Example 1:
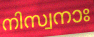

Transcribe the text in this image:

നിസ്വനാഃ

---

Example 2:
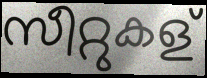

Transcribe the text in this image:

സീറ്റുകള്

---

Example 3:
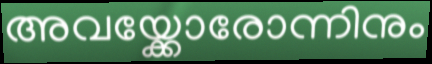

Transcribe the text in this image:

അവയ്ക്കോരോന്നിനും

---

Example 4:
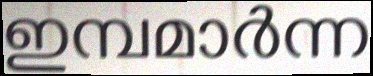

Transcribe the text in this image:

ഇമ്പമാർന്ന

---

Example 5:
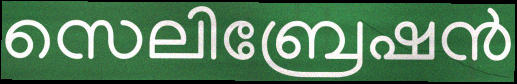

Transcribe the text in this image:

സെലിബ്രേഷൻ